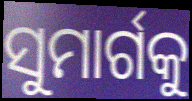
ସୁମାର୍ଗକୁ